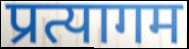
प्रत्यागम